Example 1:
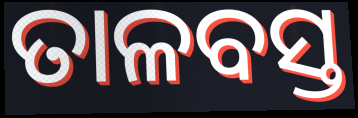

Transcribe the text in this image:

ତାଳବସ୍ତ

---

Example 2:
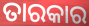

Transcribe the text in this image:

ତାରକାର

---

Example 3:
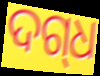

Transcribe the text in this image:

ଦଗ୍‌ଧ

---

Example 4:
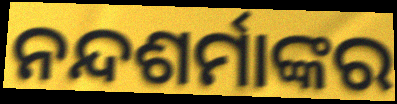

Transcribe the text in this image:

ନନ୍ଦଶର୍ମାଙ୍କର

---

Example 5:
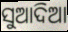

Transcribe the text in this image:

ସୁଆଦିଆ